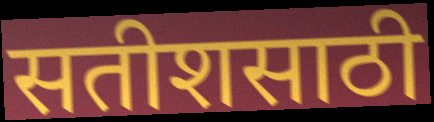
सतीशसाठी